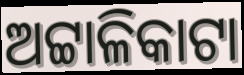
ଅଟ୍ଟାଳିକାଟା